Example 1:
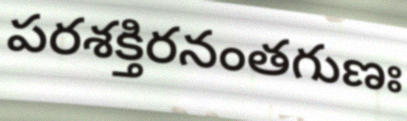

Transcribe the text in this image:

పరశక్తిరనంతగుణః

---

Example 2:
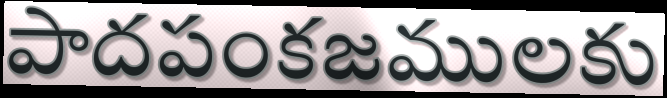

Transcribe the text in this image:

పాదపంకజములకు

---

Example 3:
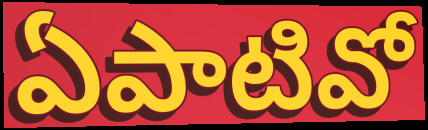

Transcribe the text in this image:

ఏపాటివో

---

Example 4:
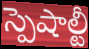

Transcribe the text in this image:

స్పెషాల్టీ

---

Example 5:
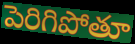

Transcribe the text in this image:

పెరిగిపోతూ